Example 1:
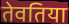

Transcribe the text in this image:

तेवतिया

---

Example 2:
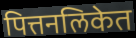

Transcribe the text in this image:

पित्तनलिकेत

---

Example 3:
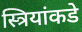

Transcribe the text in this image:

स्त्रियांकडे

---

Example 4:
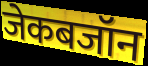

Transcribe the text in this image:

जेकबजॉन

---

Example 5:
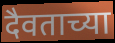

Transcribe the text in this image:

दैवताच्या